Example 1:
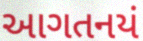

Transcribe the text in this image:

આગતનયં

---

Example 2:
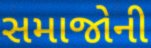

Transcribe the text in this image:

સમાજોની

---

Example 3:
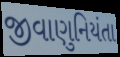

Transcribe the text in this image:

જીવાણુનિયંતા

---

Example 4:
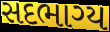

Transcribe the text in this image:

સદભાગ્ય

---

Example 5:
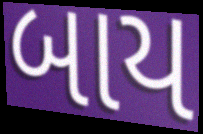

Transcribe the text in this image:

બાય